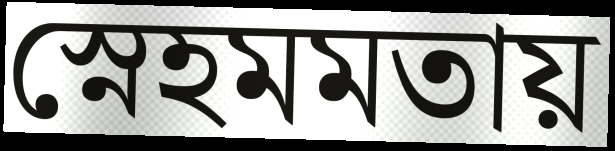
স্নেহমমতায়